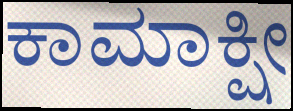
ಕಾಮಾಕ್ಷೀ